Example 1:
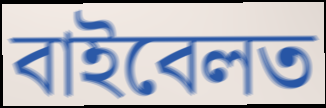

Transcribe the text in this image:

বাইবেলত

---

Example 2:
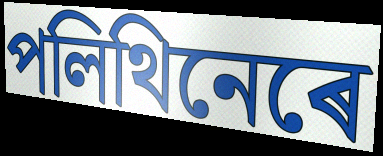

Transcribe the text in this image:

পলিথিনেৰে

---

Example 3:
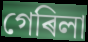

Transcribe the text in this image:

গেৰিলা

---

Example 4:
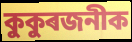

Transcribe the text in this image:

কুকুৰজনীক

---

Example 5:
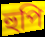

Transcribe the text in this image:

হুপি